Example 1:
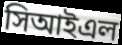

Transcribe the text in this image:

সিআইএল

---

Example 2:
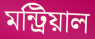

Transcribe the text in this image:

মন্ট্রিয়াল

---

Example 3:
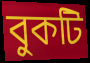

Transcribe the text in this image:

বুকটি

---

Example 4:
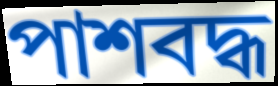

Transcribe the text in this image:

পাশবদ্ধ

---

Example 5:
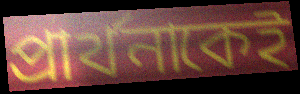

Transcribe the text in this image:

প্রার্থনাকেই